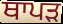
ਥਾਪੜ